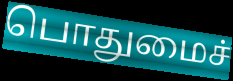
பொதுமைச்